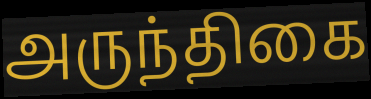
அருந்திகை